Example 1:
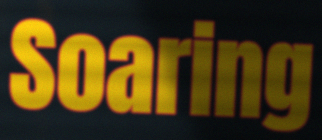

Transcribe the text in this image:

Soaring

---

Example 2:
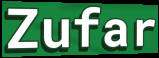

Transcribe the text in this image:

Zufar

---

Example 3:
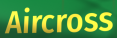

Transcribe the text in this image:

Aircross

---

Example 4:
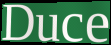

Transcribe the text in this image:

Duce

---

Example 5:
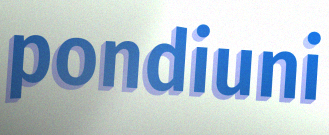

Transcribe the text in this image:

pondiuni